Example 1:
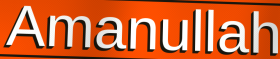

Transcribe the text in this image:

Amanullah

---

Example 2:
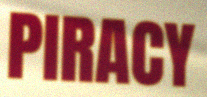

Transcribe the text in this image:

PIRACY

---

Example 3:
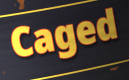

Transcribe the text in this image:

Caged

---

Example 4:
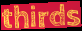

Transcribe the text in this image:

thirds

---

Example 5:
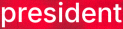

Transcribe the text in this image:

president